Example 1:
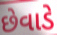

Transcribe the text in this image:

છેવાડે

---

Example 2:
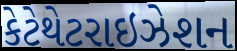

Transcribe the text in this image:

કેટેથેટરાઇઝેશન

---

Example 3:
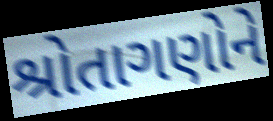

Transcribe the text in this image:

શ્રોતાગણોને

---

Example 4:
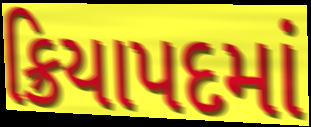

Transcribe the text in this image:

ક્રિયાપદમાં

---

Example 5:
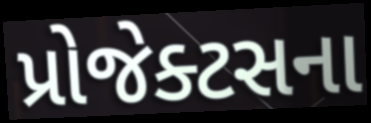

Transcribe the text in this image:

પ્રોજેક્ટસના